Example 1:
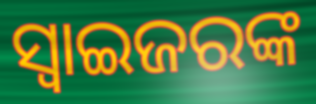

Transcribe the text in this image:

ସ୍ଵାଇଜରଙ୍କ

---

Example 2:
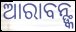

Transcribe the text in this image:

ଆରାବନ୍ଙ୍କ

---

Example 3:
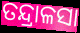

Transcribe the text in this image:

ତନ୍ଦ୍ରାଳସା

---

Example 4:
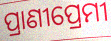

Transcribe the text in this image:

ପ୍ରାଣୀପ୍ରେମୀ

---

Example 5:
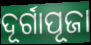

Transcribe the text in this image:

ଦୂର୍ଗାପୂଜା